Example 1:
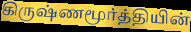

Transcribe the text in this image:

கிருஷ்ணமூர்த்தியின்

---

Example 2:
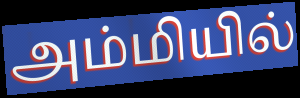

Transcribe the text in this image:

அம்மியில்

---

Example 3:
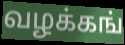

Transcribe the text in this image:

வழக்கங்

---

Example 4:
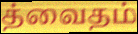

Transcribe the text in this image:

த்வைதம்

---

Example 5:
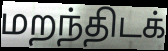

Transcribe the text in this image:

மறந்திடக்